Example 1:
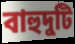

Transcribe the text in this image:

বাহুদুটি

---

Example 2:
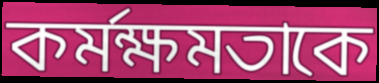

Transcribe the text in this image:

কর্মক্ষমতাকে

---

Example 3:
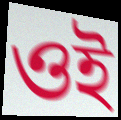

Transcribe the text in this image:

ওই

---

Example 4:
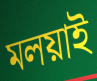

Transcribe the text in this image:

মলয়াই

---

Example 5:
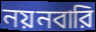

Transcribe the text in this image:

নয়নবারি